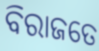
ବିରାଜତେ